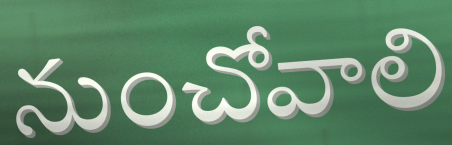
నుంచోవాలి